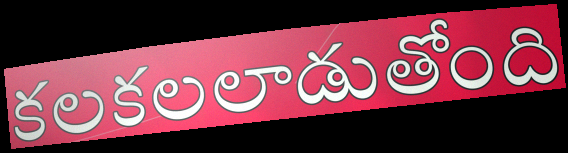
కలకలలాడుతోంది